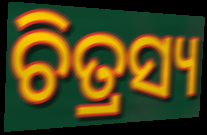
ଚିତ୍ରସ୍ୟ